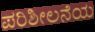
ಪರಿಶೀಲನೆಯ